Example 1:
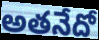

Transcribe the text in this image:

అతనేదో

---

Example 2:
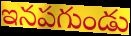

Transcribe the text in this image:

ఇనపగుండు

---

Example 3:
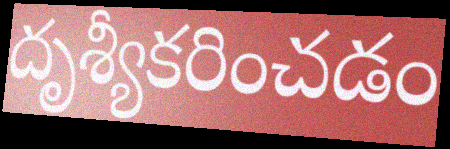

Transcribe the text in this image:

దృశ్యీకరించడం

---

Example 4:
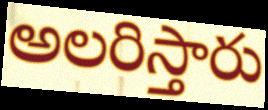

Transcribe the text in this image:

అలరిస్తారు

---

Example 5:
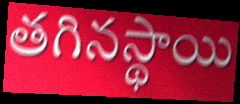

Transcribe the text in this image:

తగినస్థాయి